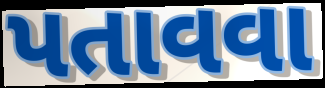
પતાવવા